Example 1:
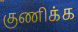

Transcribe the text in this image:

குணிக்க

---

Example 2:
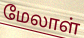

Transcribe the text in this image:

மேலாள்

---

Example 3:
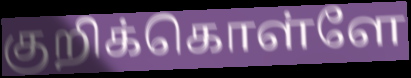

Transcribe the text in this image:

குறிக்கொள்ளே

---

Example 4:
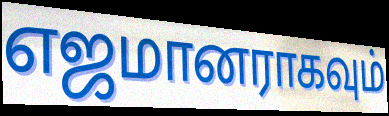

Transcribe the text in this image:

எஜமானராகவும்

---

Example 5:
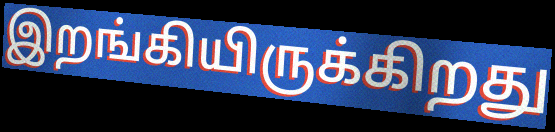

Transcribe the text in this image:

இறங்கியிருக்கிறது